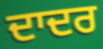
ਦਾਦਰ